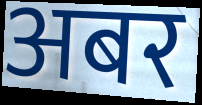
अबर